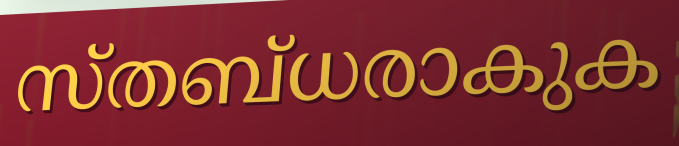
സ്തബ്ധരാകുക